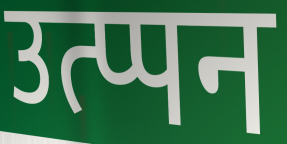
उत्प्पन